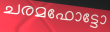
ചരമഫോട്ടോ